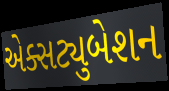
એક્સટ્યુબેશન